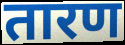
तारण